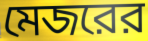
মেজরের